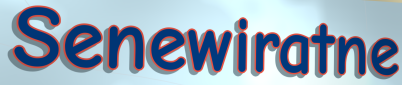
Senewiratne